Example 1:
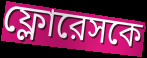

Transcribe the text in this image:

ফ্লোরেসকে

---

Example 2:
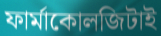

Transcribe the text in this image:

ফার্মাকোলজিটাই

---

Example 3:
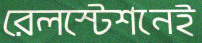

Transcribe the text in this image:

রেলস্টেশনেই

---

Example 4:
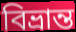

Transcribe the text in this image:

বিভ্রান্ত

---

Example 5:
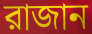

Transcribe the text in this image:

রাজান